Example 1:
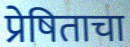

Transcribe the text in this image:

प्रेषिताचा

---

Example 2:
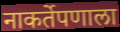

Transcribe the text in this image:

नाकर्तेपणाला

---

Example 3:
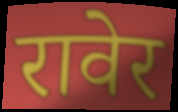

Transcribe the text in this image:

रावेर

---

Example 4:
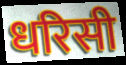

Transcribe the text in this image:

धरिसी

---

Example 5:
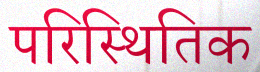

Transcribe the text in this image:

परिस्थितिक